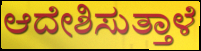
ಆದೇಶಿಸುತ್ತಾಳೆ